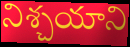
నిశ్చయాని